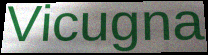
Vicugna